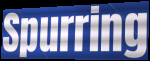
Spurring